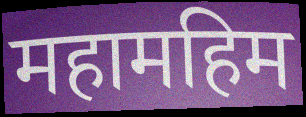
महामहिम